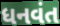
ધનવંત